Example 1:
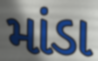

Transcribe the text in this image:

માંડા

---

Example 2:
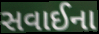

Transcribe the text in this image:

સવાઈના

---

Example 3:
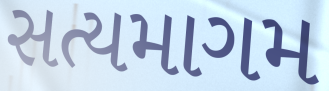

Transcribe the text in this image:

સત્યમાગમ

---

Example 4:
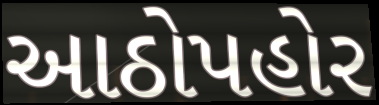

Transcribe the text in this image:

આઠોપહોર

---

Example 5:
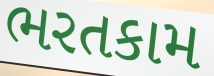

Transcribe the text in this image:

ભરતકામ